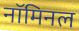
नॉमिनल